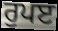
ਰੁਪੲ